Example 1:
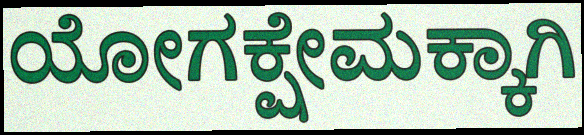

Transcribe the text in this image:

ಯೋಗಕ್ಷೇಮಕ್ಕಾಗಿ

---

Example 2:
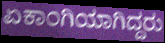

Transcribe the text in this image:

ಏಕಾಂಗಿಯಾಗಿದ್ದರು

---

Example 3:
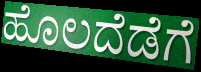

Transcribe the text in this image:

ಹೊಲದೆಡೆಗೆ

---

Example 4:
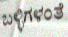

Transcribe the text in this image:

ಬಳ್ಳಿಗಳಂತೆ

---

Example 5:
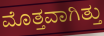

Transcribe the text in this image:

ಮೊತ್ತವಾಗಿತ್ತು